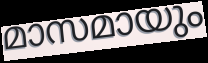
മാസമായും